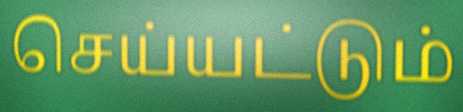
செய்யட்டும்